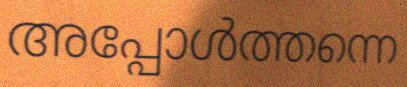
അപ്പോൾത്തന്നെ